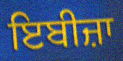
ਇਬੀਜ਼ਾ